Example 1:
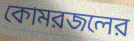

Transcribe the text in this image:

কোমরজলের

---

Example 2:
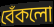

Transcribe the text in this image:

বেঁকলো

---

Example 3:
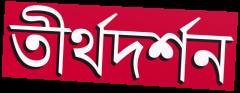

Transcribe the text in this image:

তীর্থদর্শন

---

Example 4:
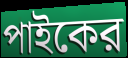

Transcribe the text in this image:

পাইকের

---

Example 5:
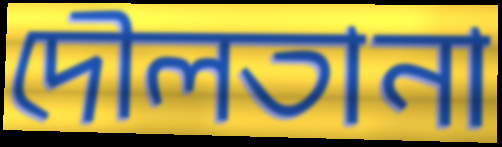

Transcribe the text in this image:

দৌলতানা